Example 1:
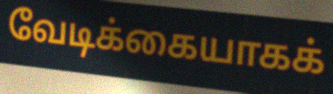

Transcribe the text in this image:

வேடிக்கையாகக்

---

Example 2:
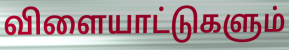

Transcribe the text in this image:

விளையாட்டுகளும்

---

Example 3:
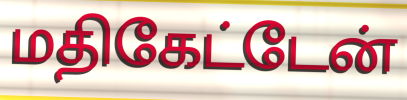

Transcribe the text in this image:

மதிகேட்டேன்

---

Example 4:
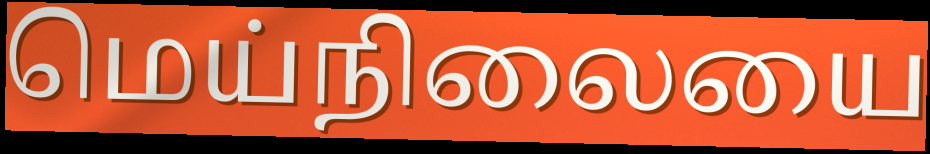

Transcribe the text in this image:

மெய்நிலையை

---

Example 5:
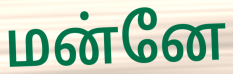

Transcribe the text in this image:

மன்னே